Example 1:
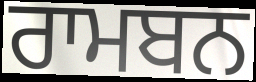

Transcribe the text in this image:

ਰਾਮਬਨ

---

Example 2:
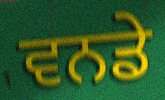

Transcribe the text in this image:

ਵਨਡੇ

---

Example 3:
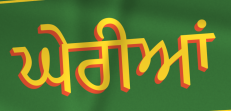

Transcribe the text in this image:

ਘੇਰੀਆਂ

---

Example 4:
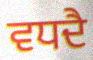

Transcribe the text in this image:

ਵਧਦੈ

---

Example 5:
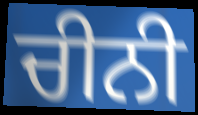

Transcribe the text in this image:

ਚੀਨੀ